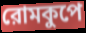
রোমকুপে